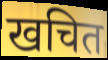
खचित